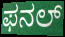
ಫನಲ್